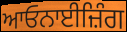
ਆਓਨਾਈਜ਼ਿੰਗ